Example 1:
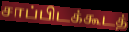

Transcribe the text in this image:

சாப்பிடக்கூடத்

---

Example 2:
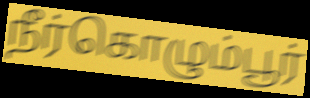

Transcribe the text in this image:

நீர்கொழும்பூர்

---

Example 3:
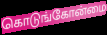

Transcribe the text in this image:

கொடுங்கோன்மை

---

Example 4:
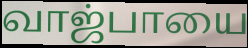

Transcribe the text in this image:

வாஜ்பாயை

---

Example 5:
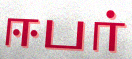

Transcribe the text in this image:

ஈபர்